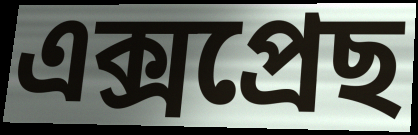
এক্সপ্ৰেছ